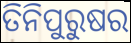
ତିନିପୁରୁଷର